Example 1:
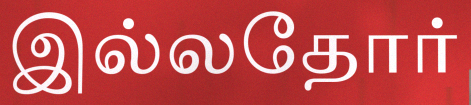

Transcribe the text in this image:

இல்லதோர்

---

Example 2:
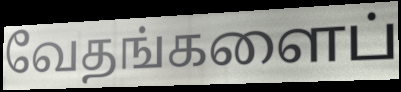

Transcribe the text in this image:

வேதங்களைப்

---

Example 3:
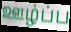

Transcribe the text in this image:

ஊழ்ப்ப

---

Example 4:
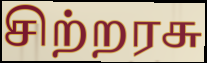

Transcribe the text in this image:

சிற்றரசு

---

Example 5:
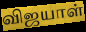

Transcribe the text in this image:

விஜயாள்